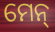
ମେନ୍